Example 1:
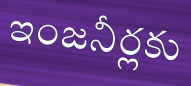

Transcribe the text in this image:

ఇంజనీర్లకు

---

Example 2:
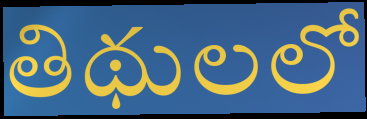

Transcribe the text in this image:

తిథులలో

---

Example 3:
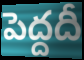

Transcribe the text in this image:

పెద్దదీ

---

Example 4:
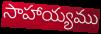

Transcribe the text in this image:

సాహాయ్యము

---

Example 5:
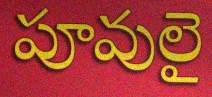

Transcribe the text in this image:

పూవులై